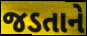
જડતાને